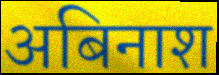
अबिनाश